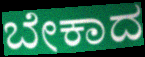
ಬೇಕಾದ